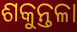
ଶକୁନ୍ତଳା